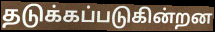
தடுக்கப்படுகின்றன